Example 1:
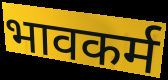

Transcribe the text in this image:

भावकर्म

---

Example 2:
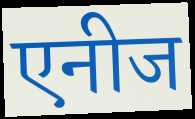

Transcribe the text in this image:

एनीज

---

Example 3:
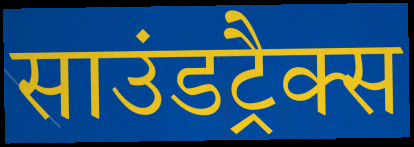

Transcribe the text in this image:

साउंडट्रैक्स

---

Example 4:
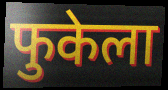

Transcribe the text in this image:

फुकेला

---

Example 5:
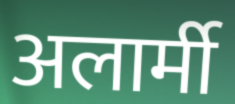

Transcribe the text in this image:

अलार्मी